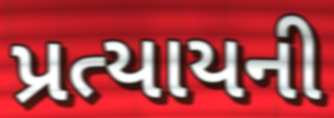
પ્રત્યાયની